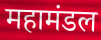
महामंडल